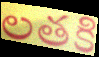
లతకి